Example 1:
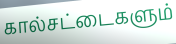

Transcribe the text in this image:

கால்சட்டைகளும்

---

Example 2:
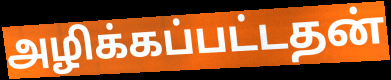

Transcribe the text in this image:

அழிக்கப்பட்டதன்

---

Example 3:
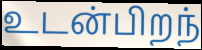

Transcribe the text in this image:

உடன்பிறந்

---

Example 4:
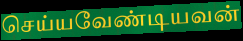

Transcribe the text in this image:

செய்யவேண்டியவன்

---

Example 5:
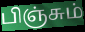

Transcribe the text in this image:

பிஞ்சும்